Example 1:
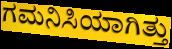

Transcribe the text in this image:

ಗಮನಿಸಿಯಾಗಿತ್ತು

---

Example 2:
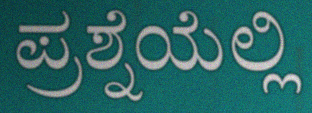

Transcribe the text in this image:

ಪ್ರಶ್ನೆಯೆಲ್ಲಿ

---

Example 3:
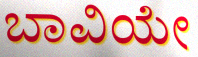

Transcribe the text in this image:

ಬಾವಿಯೇ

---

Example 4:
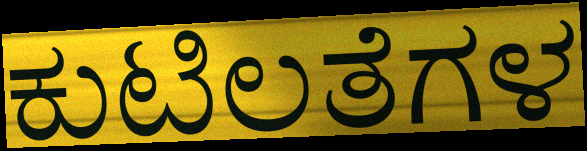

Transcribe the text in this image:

ಕುಟಿಲತೆಗಳ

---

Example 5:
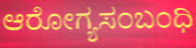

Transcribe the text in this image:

ಆರೋಗ್ಯಸಂಬಂಧಿ